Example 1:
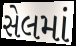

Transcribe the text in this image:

સેલમાં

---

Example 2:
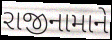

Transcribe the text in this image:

રાજીનામાને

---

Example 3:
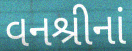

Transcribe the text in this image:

વનશ્રીનાં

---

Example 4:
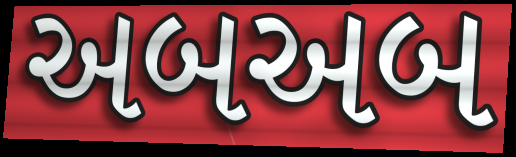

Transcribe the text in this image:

અબઅબ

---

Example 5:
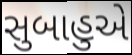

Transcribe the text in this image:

સુબાહુએ